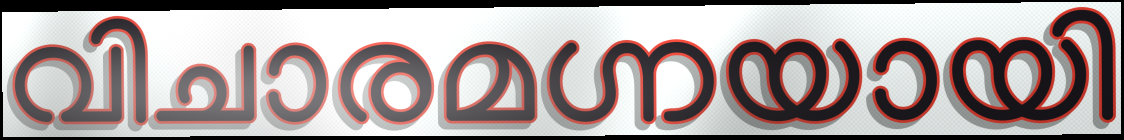
വിചാരമഗ്നയായി